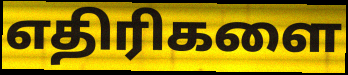
எதிரிகளை